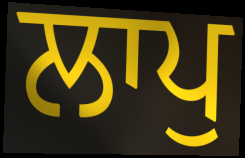
ਲਾਪੁ